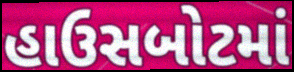
હાઉસબોટમાં